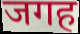
जगह